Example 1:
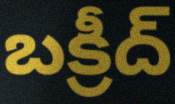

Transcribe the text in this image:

బక్రీద్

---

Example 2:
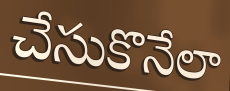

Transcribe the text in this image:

చేసుకొనేలా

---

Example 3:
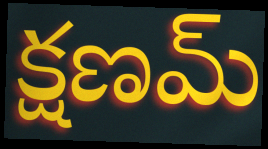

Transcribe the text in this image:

క్షణమ్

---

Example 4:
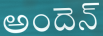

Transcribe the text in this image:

అందెన్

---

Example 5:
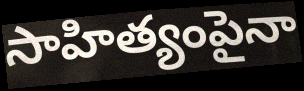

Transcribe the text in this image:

సాహిత్యంపైనా